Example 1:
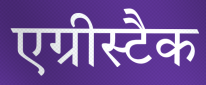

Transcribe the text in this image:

एग्रीस्टैक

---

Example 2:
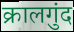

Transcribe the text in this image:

क्रालगुंद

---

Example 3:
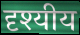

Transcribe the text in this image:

दृश्यीय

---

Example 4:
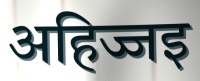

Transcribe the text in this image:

अहिज्जइ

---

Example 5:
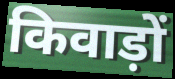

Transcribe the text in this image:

किवाड़ों